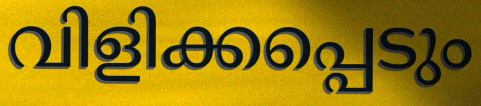
വിളിക്കപ്പെടും